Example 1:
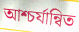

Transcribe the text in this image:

আশ্চর্যান্বিত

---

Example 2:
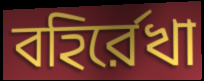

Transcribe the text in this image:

বহির্রেখা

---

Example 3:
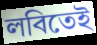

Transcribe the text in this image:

লবিতেই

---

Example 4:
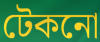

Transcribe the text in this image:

টেকনো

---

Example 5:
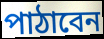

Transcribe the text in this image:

পাঠাবেন